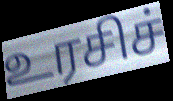
உரசிச்